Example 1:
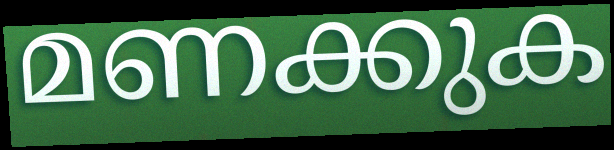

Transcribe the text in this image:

മണക്കുക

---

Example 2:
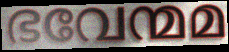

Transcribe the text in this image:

ഭവേന്മമ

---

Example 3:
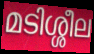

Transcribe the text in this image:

മടിശ്ശീല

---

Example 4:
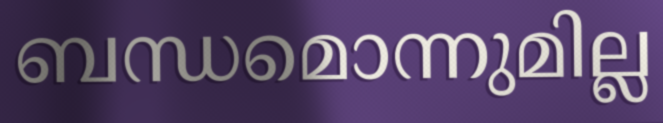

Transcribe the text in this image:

ബന്ധമൊന്നുമില്ല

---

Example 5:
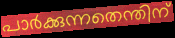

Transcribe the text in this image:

പാർക്കുന്നതെന്തിന്